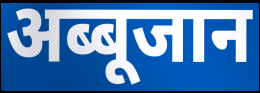
अब्बूजान